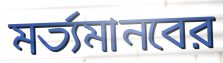
মর্ত্যমানবের